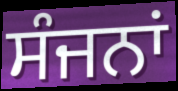
ਸੰਜਨਾਂ